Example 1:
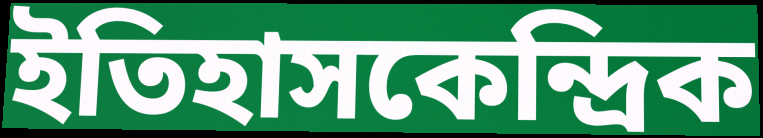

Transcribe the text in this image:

ইতিহাসকেন্দ্রিক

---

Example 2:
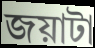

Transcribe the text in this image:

জয়াটা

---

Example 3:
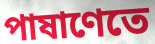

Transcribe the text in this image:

পাষাণেতে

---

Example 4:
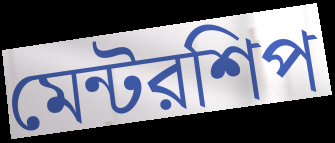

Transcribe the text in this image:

মেন্টরশিপ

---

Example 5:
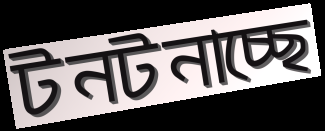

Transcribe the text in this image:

টনটনাচ্ছে